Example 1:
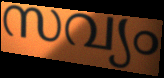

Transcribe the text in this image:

സവ്യം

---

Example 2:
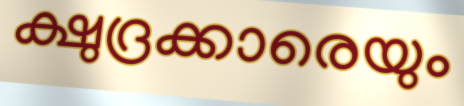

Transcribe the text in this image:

ക്ഷുദ്രക്കാരെയും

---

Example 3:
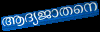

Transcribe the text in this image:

ആദ്യജാതനെ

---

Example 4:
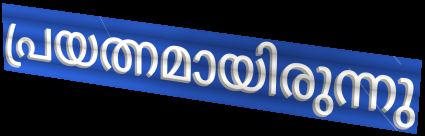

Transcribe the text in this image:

പ്രയത്നമായിരുന്നു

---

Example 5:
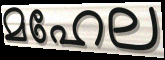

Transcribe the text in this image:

മഹേല